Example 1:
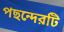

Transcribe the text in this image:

পছন্দেরটি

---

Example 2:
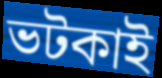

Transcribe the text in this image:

ভটকাই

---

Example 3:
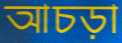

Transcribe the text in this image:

আচড়া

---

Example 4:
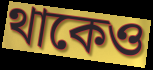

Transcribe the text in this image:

থাকেও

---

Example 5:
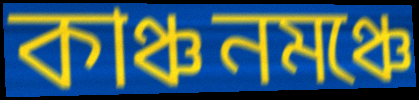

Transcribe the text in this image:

কাঞ্চনমঞ্চে